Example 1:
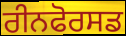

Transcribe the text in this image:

ਰੀਨਫੋਰਸਡ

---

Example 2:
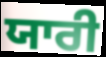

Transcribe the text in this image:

ਯਾਰੀ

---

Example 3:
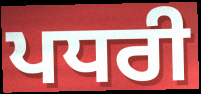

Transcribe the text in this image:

ਪਧਰੀ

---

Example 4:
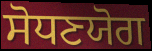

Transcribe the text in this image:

ਸੋਧਣਯੋਗ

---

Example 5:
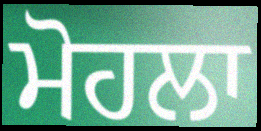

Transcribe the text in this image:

ਮੋਹਲਾ